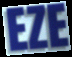
EZE